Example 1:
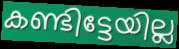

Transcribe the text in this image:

കണ്ടിട്ടേയില്ല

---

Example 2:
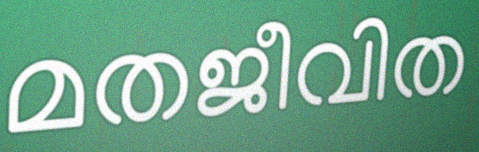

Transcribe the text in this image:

മതജീവിത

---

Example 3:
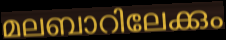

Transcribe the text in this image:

മലബാറിലേക്കും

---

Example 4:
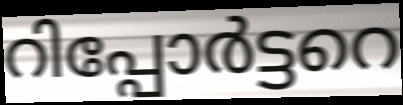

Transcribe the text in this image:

റിപ്പോർട്ടറെ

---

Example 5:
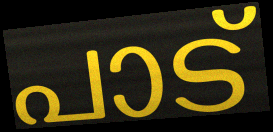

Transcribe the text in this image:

പാട്